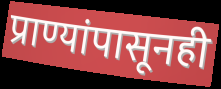
प्राण्यांपासूनही